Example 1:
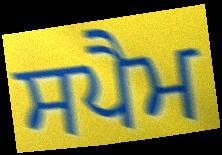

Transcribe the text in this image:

ਸਪੈਮ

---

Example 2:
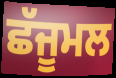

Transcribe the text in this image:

ਛੱਜੂਮਲ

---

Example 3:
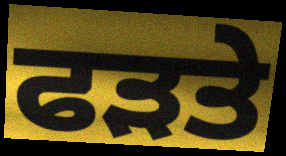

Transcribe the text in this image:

ਫੜਤੇ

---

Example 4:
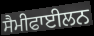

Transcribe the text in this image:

ਸੈਮੀਫਾਈਲਨ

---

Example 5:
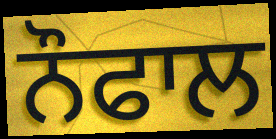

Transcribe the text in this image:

ਨੌਫਾਲ